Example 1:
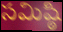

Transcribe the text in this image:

సమిష్ఠి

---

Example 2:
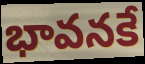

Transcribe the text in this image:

భావనకే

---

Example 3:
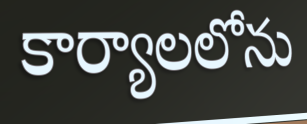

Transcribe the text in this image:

కార్యాలలోను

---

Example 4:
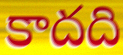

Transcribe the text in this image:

కాదది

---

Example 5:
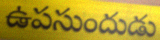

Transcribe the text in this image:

ఉపసుందుడు